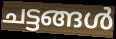
ചട്ടങ്ങൾ